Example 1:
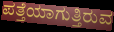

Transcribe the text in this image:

ಪತ್ತೆಯಾಗುತ್ತಿರುವ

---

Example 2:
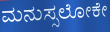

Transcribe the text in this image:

ಮನುಸ್ಸಲೋಕೇ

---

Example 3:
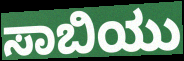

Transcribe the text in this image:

ಸಾಬಿಯು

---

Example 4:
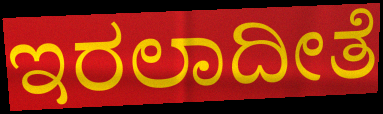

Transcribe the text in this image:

ಇರಲಾದೀತೆ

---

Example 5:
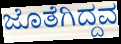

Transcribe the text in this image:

ಜೊತೆಗಿದ್ದವ